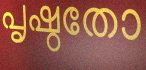
പൃഷ്ഠതോ